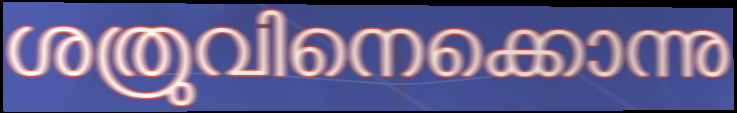
ശത്രുവിനെക്കൊന്നു